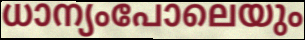
ധാന്യംപോലെയും